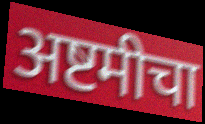
अष्टमीचा